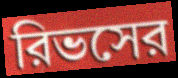
রিভসের